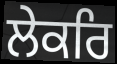
ਲੇਕਰਿ